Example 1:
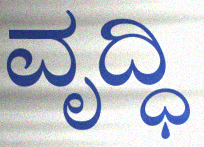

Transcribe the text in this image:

ವೃದ್ಧಿ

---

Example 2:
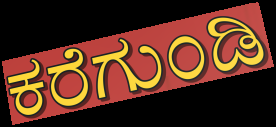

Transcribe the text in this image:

ಕರೆಗುಂಡಿ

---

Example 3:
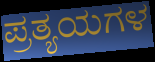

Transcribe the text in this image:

ಪ್ರತ್ಯಯಗಳ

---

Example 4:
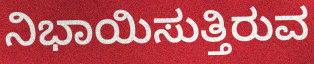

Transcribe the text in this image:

ನಿಭಾಯಿಸುತ್ತಿರುವ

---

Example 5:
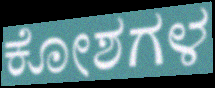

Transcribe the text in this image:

ಕೋಶಗಳ